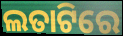
ଲତାଟିରେ